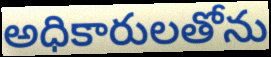
అధికారులతోను